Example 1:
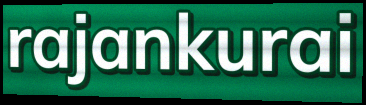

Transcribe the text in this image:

rajankurai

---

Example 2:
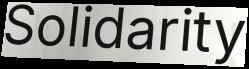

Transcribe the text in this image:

Solidarity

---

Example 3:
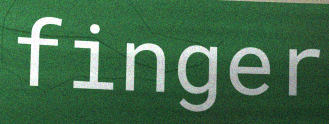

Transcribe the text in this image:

finger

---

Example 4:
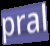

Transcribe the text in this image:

pral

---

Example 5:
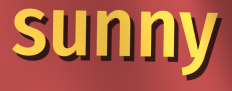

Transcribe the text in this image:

sunny